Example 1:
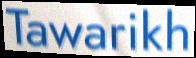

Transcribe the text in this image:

Tawarikh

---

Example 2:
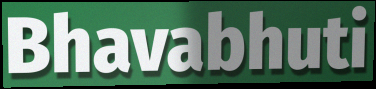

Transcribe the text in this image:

Bhavabhuti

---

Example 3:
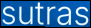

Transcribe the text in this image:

sutras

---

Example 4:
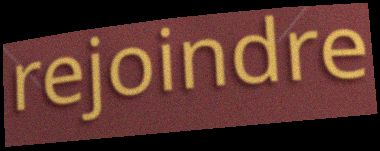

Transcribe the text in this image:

rejoindre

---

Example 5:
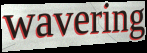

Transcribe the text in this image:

wavering